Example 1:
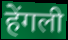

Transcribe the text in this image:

हेंगली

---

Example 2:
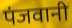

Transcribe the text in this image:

पंजवानी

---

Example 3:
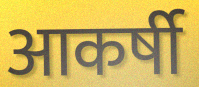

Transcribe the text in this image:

आकर्षी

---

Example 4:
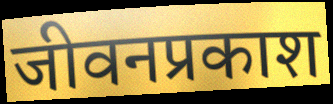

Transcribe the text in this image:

जीवनप्रकाश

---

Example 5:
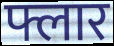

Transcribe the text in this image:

फ्लार